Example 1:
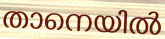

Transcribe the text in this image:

താനെയിൽ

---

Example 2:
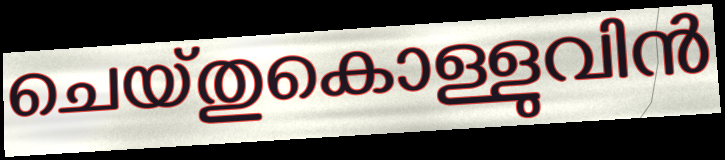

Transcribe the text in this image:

ചെയ്തുകൊള്ളുവിൻ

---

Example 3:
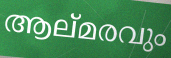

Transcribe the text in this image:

ആല്മരവും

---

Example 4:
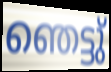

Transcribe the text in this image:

ഞെട്ടു്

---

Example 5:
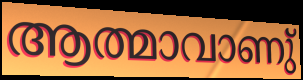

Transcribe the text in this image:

ആത്മാവാണു്